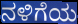
ನಳಿಗೆಯ